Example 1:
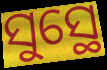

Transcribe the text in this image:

ସୁସ୍ଥେ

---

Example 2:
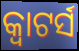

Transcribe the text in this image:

କ୍ଵାଟର୍ସ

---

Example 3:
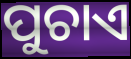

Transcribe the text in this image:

ପୁଚାଏ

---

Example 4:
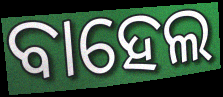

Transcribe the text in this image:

ବାହେଲ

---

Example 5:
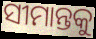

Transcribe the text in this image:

ସୀମାନ୍ତକୁ